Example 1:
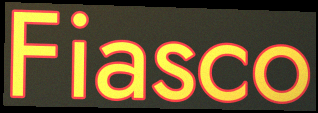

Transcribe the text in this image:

Fiasco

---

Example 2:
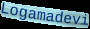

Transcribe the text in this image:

Logamadevi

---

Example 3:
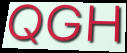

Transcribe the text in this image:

QGH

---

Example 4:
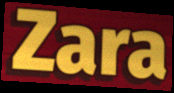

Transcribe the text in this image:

Zara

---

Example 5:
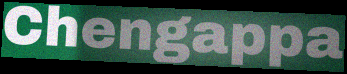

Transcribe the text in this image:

Chengappa